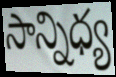
సాన్నిధ్య